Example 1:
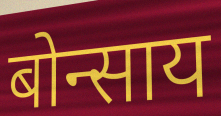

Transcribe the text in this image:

बोन्साय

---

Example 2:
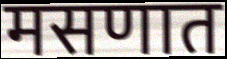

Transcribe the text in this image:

मसणात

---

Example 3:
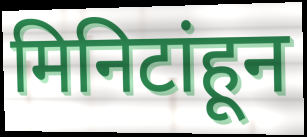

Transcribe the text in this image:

मिनिटांहून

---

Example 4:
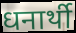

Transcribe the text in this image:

धनार्थी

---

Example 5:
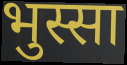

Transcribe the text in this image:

भुस्सा